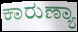
ಕಾರುಣ್ಯಾ